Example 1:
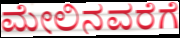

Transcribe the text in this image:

ಮೇಲಿನವರೆಗೆ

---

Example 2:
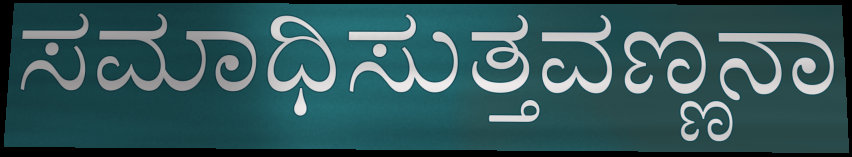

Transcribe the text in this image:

ಸಮಾಧಿಸುತ್ತವಣ್ಣನಾ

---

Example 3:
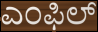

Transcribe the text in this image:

ಎಂಫಿಲ್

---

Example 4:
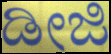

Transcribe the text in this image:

ಡೀಜಿ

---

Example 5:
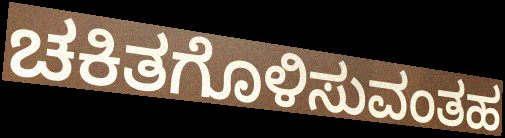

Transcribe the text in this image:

ಚಕಿತಗೊಳಿಸುವಂತಹ